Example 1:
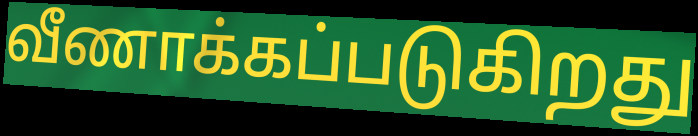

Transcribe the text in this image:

வீணாக்கப்படுகிறது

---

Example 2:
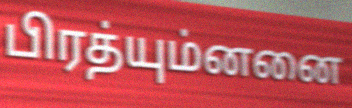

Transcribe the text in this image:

பிரத்யும்னனை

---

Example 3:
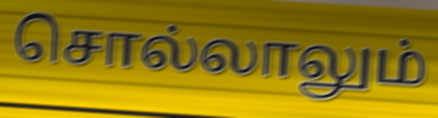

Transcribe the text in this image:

சொல்லாலும்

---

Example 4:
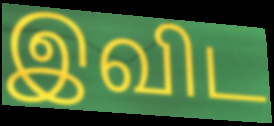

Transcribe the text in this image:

இவிட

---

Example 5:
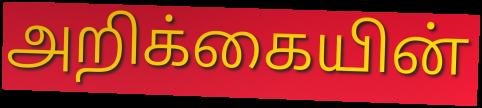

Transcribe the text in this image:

அறிக்கையின்